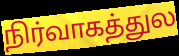
நிர்வாகத்துல